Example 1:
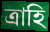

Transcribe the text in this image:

ত্রাহি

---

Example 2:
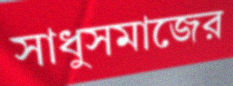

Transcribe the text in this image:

সাধুসমাজের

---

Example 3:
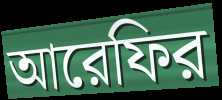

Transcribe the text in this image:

আরেফির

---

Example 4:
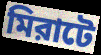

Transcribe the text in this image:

মিরাটে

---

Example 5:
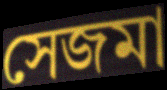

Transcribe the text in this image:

সেজমা